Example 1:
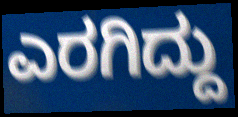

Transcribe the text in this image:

ಎರಗಿದ್ದು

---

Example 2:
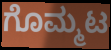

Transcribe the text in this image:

ಗೊಮ್ಮಟ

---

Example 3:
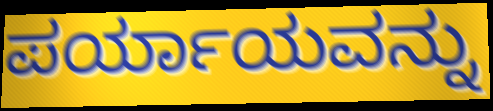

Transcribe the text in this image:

ಪರ್ಯಾಯವನ್ನು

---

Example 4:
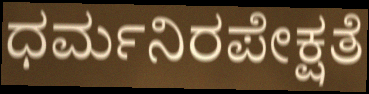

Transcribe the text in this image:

ಧರ್ಮನಿರಪೇಕ್ಷತೆ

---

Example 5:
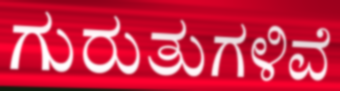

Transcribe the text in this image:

ಗುರುತುಗಳಿವೆ